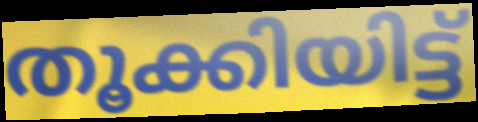
തൂക്കിയിട്ട്